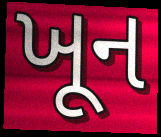
ખૂન